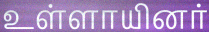
உள்ளாயினர்